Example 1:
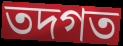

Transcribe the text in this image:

তদগত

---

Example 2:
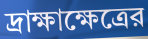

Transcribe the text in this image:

দ্রাক্ষাক্ষেত্রের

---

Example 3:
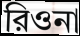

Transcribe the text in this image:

রিওনা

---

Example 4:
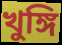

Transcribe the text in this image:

খুঙ্গি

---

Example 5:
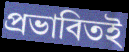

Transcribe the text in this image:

প্রভাবিতই